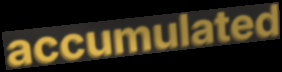
accumulated